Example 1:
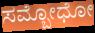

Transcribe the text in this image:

ಸಮ್ಬೋಧೋ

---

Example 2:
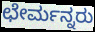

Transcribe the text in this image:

ಛೇರ್ಮನ್ನರು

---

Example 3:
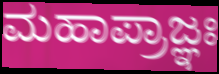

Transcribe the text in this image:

ಮಹಾಪ್ರಾಜ್ಞಃ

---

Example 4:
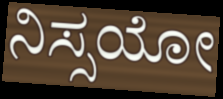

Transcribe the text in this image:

ನಿಸ್ಸಯೋ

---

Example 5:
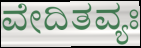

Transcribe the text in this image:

ವೇದಿತವ್ಯಃ